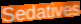
Sedatives